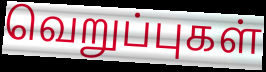
வெறுப்புகள்